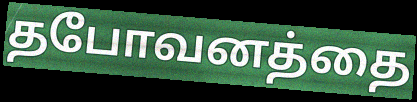
தபோவனத்தை